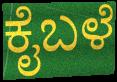
ಕೈಬಳೆ